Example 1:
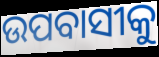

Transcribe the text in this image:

ଉପବାସୀକୁ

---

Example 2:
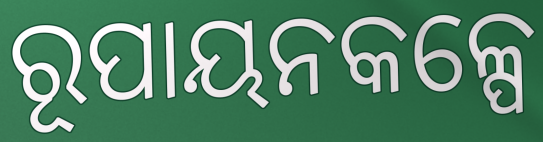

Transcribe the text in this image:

ରୂପାୟନକଳ୍ପେ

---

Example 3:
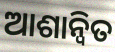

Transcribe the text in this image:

ଆଶାନ୍ବିତ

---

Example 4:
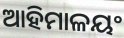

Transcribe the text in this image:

ଆହିମାଳୟଂ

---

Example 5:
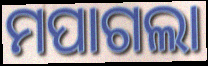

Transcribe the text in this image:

ମପାଗଲା